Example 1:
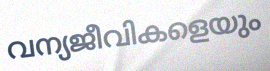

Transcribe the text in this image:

വന്യജീവികളെയും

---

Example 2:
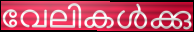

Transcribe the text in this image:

വേലികൾക്കു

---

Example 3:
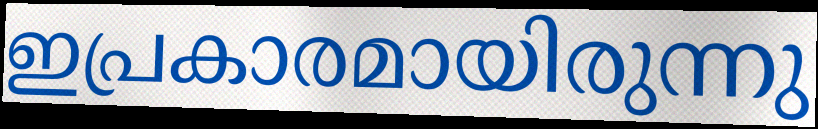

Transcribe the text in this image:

ഇപ്രകാരമായിരുന്നു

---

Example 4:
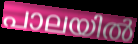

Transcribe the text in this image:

പാലയിൽ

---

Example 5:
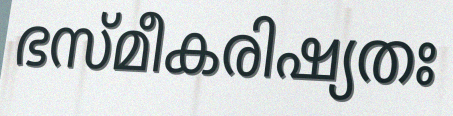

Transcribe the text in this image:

ഭസ്മീകരിഷ്യതഃ